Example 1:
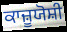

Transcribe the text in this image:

ਕਾਜ਼ੂਯੋਸ਼ੀ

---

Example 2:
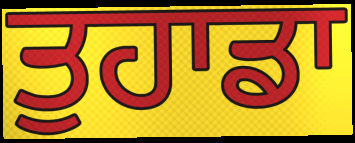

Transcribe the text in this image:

ਤੁਹਾਡਾ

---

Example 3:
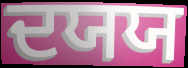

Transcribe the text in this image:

ਦਯਯ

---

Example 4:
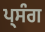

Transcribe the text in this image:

ਪ੍ਸੰਗ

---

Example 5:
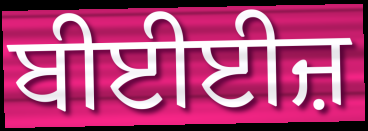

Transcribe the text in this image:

ਬੀਈਈਜ਼